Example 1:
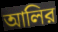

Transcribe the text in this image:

আলির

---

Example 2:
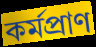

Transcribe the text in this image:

কর্মপ্রাণ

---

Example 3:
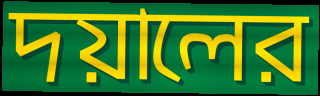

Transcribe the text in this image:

দয়ালের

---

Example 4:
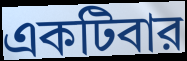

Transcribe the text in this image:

একটিবার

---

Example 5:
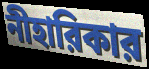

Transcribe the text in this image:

নীহারিকার